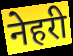
नेहरी